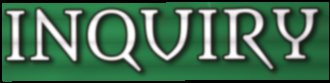
INQUIRY